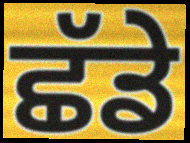
ਛੱਡੇ